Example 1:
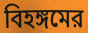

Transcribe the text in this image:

বিহঙ্গমের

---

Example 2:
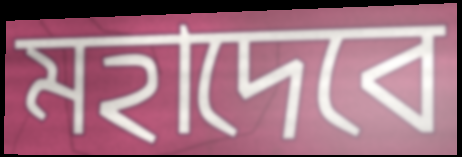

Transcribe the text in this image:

মহাদেবে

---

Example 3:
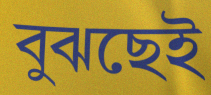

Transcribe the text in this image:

বুঝছেই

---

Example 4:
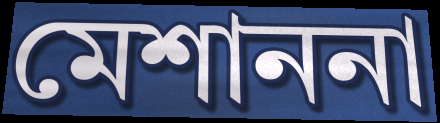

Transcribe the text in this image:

মেশাননা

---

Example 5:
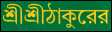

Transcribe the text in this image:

শ্রীশ্রীঠাকুরের